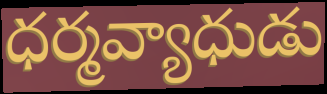
ధర్మవ్యాధుడు